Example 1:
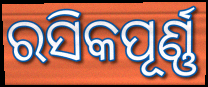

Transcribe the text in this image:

ରସିକପୂର୍ଣ୍ଣ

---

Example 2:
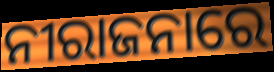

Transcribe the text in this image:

ନୀରାଜନାରେ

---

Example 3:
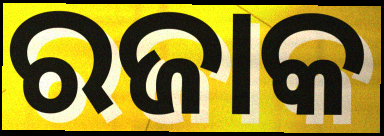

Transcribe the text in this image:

ରଜାକ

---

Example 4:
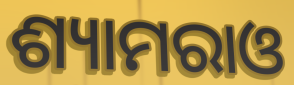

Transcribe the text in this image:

ଶ୍ୟାମରାଓ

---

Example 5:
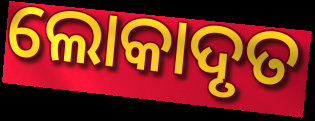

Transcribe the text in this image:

ଲୋକାଦୃତ